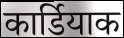
कार्डियाक